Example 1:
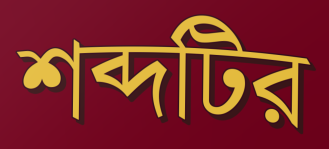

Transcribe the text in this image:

শব্দটির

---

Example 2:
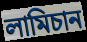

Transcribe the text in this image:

লামিচান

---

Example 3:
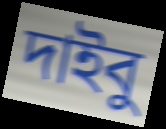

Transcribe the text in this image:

দাইবু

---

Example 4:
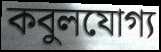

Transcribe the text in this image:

কবুলযোগ্য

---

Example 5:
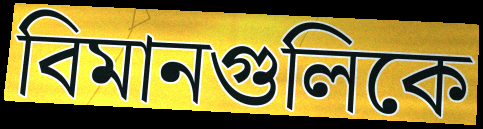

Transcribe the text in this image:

বিমানগুলিকে